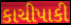
કાચીપાકી